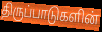
திருப்பாடுகளின்